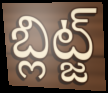
బ్లిట్జ్